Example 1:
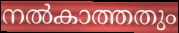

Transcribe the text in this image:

നൽകാത്തതും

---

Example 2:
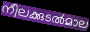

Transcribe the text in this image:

നീലക്കുടൽമാല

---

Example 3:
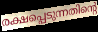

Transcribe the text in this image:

രക്ഷപ്പെടുന്നതിന്റെ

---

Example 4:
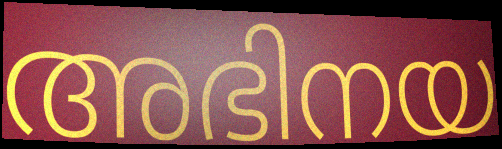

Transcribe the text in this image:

അഭിനയ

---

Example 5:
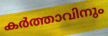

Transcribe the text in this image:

കർത്താവിനും